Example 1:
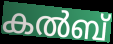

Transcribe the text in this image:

കൽബ്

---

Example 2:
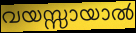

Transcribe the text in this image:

വയസ്സായാൽ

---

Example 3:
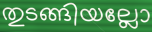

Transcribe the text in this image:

തുടങ്ങിയല്ലോ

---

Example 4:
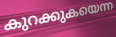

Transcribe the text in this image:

കുറക്കുകയെന്ന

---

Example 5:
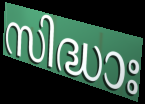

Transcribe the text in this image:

സിദ്ധാഃ